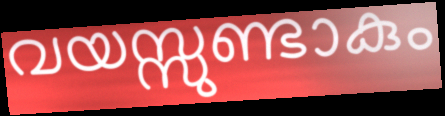
വയസ്സുണ്ടാകും